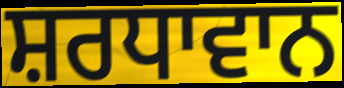
ਸ਼ਰਧਾਵਾਨ